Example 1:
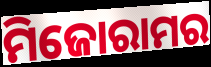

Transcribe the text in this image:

ମିଜୋରାମର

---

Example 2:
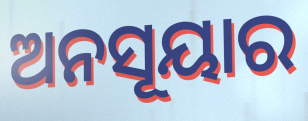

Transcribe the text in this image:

ଅନସୂୟାର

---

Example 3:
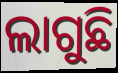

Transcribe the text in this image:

ଲାଗୁଛି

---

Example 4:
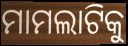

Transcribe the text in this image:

ମାମଲାଟିକୁ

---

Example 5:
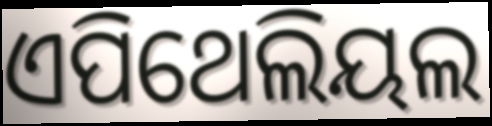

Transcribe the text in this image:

ଏପିଥେଲିୟଲ